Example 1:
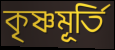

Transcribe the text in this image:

কৃষ্ণমূর্তি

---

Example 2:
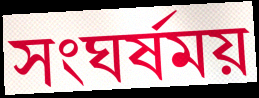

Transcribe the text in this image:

সংঘর্ষময়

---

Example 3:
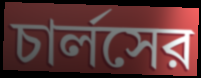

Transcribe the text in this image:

চার্লসের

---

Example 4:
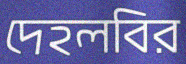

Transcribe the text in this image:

দেহলবির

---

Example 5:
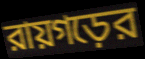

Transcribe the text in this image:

রায়গড়ের